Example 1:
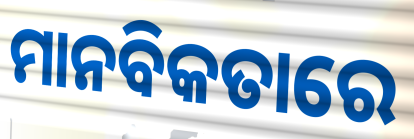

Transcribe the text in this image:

ମାନବିକତାରେ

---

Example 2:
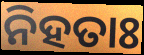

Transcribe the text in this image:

ନିହତାଃ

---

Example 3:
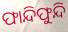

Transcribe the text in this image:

ଫାନ୍ଦିଫୁନ୍ଦି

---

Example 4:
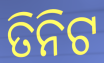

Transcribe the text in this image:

ତିନିଟ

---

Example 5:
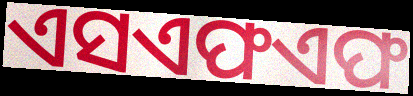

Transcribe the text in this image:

ଏସଏଫଏଫ